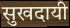
सुखदायी